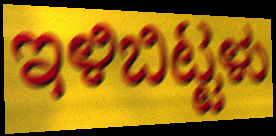
ಇಳಿಬಿಟ್ಟಳು